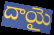
దాయై